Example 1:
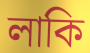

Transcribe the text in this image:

লাকি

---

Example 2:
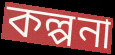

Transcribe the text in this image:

কল্পনা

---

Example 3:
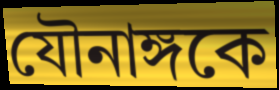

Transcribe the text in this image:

যৌনাঙ্গকে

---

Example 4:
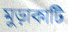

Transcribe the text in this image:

মুড়াকাটি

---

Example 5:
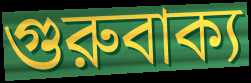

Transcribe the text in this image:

গুরুবাক্য